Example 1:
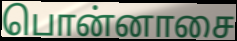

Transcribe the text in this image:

பொன்னாசை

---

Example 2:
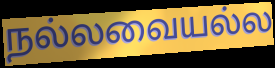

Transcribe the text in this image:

நல்லவையல்ல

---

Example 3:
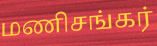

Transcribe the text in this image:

மணிசங்கர்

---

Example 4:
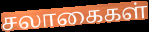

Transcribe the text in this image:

சலாகைகள்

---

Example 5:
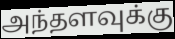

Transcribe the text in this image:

அந்தளவுக்கு